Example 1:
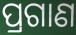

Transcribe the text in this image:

ପ୍ରଗାଣ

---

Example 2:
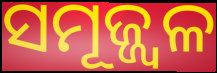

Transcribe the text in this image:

ସମୂଜ୍ଜ୍ୱଳ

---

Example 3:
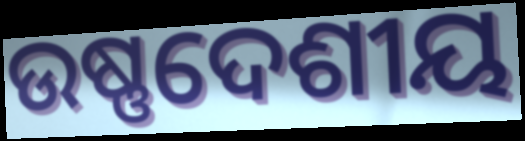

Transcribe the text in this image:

ଉଷ୍ଣଦେଶୀୟ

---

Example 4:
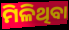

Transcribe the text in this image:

ମିଳିଥିବା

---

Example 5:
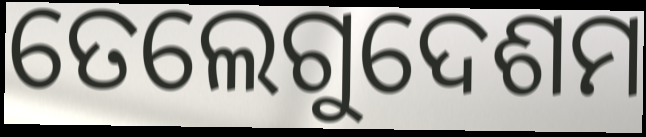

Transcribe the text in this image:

ତେଲେଗୁଦେଶମ